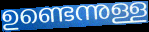
ഉണ്ടെന്നുള്ള